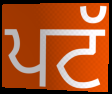
ਪਟੱ